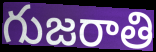
గుజరాతి